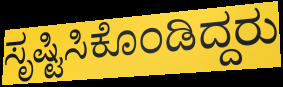
ಸೃಷ್ಟಿಸಿಕೊಂಡಿದ್ದರು